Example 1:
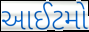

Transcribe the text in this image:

આઈટમો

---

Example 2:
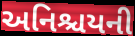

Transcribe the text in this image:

અનિશ્ચયની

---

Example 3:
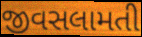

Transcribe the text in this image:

જીવસલામતી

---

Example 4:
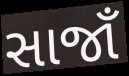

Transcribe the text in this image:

સાજાઁ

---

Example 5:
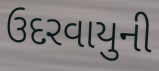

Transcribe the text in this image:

ઉદરવાયુની